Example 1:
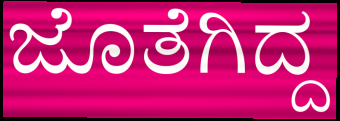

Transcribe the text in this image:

ಜೊತೆಗಿದ್ದ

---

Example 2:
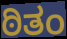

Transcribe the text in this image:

ಠಿತಂ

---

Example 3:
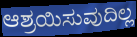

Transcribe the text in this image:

ಆಶ್ರಯಿಸುವುದಿಲ್ಲ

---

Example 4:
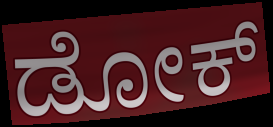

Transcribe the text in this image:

ಡೋಕ್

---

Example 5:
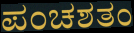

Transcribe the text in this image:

ಪಂಚಶತಂ